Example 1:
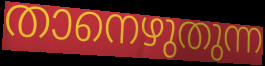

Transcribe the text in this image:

താനെഴുതുന്ന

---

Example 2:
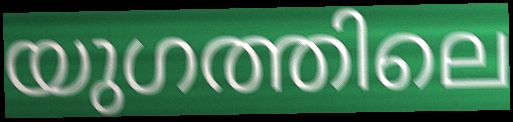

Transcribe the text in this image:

യുഗത്തിലെ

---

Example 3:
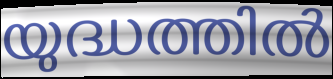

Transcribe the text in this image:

യുദ്ധത്തിൽ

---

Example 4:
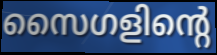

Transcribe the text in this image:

സൈഗളിന്റെ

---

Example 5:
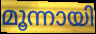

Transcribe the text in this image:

മൂന്നായി